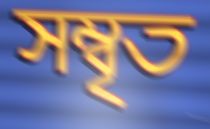
সম্বৃত